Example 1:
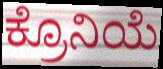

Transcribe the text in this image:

ಕ್ರೊನಿಯೆ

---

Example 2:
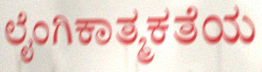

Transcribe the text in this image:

ಲೈಂಗಿಕಾತ್ಮಕತೆಯ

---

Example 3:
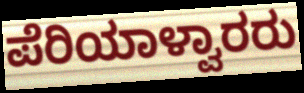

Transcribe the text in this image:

ಪೆರಿಯಾಳ್ವಾರರು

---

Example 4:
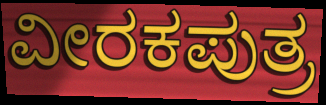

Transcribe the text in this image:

ವೀರಕಪುತ್ರ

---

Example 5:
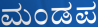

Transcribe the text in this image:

ಮಂಡಪ